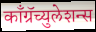
काँग्रॅच्युलेशन्स